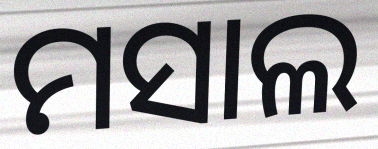
ମସାଲ